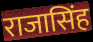
राजासिंह